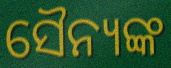
ସୈନ୍ୟଙ୍କ